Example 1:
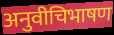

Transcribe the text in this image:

अनुवीचिभाषण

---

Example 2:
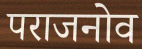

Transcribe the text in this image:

पराजनोव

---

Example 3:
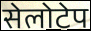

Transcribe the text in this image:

सेलोटेप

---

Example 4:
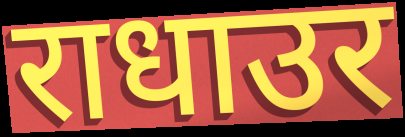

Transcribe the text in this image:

राधाउर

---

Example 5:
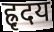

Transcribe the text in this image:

ह्रृदय